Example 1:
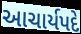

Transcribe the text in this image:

આચાર્યપદે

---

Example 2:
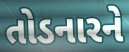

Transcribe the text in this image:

તોડનારને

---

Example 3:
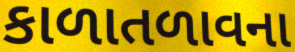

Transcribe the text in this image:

કાળાતળાવના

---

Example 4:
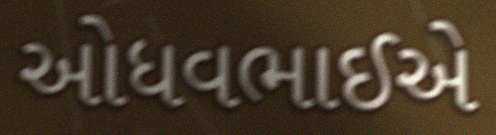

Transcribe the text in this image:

ઓધવભાઈએ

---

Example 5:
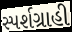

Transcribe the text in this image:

સ્પર્શગ્રાહી